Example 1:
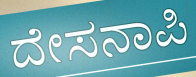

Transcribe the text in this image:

ದೇಸನಾಪಿ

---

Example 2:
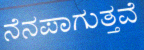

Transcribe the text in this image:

ನೆನಪಾಗುತ್ತವೆ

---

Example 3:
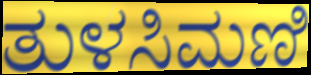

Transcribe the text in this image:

ತುಳಸಿಮಣಿ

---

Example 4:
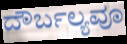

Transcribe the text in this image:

ದೌರ್ಬಲ್ಯವೂ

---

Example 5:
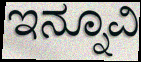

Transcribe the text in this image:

ಇನ್ನೂವಿ